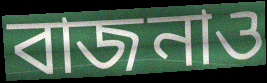
বাজনাও